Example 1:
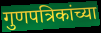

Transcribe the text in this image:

गुणपत्रिकांच्या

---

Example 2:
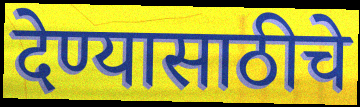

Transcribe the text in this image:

देण्यासाठीचे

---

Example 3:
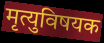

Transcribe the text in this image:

मृत्युविषयक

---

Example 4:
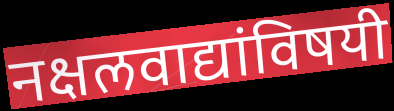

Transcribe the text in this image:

नक्षलवाद्यांविषयी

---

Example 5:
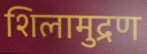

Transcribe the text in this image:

शिलामुद्रण